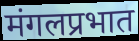
मंगलप्रभात